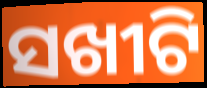
ସଖୀଟି